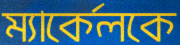
ম্যার্কেলকে